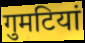
गुमटियां